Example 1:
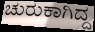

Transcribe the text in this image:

ಚುರುಕಾಗಿದ್ದ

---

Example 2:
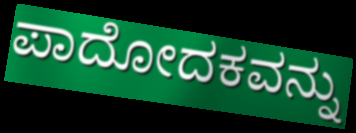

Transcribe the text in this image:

ಪಾದೋದಕವನ್ನು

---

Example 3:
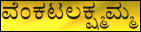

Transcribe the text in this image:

ವೆಂಕಟಲಕ್ಷ್ಮಮ್ಮ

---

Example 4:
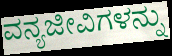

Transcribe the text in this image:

ವನ್ಯಜೀವಿಗಳನ್ನು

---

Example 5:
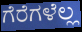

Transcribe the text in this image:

ಗೆರೆಗಳೆಲ್ಲ